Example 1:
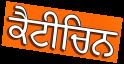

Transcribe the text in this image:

ਕੈਟੀਚਿਨ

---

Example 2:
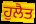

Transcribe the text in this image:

ਹੁਲੈਤ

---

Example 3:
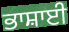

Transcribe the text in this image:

ਭਾਸ਼ਾਈ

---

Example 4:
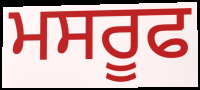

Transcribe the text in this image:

ਮਸਰੂਫ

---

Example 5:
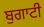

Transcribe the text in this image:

ਬੁਗਾਟੀ